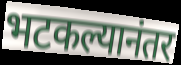
भटकल्यानंतर